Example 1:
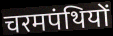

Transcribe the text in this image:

चरमपंथियों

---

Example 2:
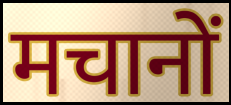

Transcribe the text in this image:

मचानों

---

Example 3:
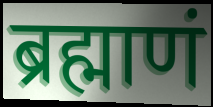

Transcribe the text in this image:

ब्रह्माणं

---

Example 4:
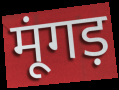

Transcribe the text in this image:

मूंगड़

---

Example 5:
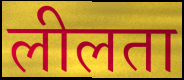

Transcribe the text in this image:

लीलता